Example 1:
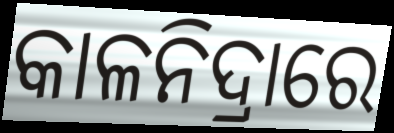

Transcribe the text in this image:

କାଳନିଦ୍ରାରେ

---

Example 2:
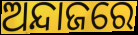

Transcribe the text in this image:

ଅନ୍ଦାଜରେ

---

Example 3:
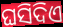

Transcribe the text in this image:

ଘସିଦିଏ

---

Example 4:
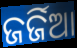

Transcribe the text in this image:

ଜର୍ଜିଆ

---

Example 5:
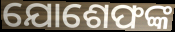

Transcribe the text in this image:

ଯୋଶେଫଙ୍କ